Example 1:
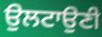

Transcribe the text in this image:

ਉਲਟਾਉਣੀ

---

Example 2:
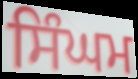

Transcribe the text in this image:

ਸਿੰਘਮ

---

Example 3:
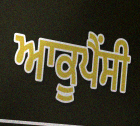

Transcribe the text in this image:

ਆਕੂਪੈਂਸੀ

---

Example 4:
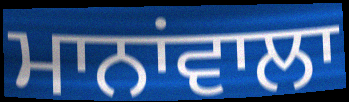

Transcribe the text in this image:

ਮਾਨਾਂਵਾਲਾ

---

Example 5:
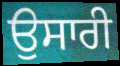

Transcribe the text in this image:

ਉਸਾਰੀ